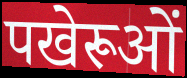
पखेरूओं